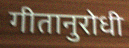
गीतानुरोधी